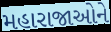
મહારાજાઓને